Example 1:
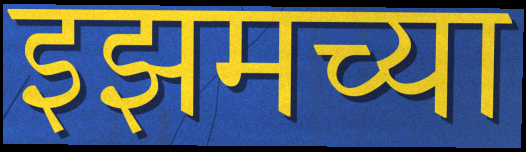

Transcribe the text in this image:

इझमच्या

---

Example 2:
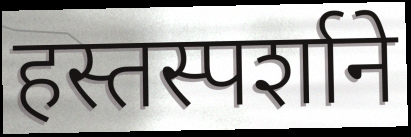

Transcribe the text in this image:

हस्तस्पर्शाने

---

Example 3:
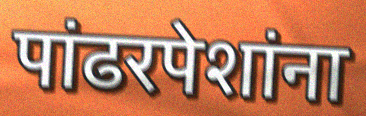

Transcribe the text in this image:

पांढरपेशांना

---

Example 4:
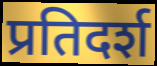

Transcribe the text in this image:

प्रतिदर्श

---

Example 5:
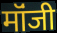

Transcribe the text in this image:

मॉंजी